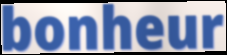
bonheur